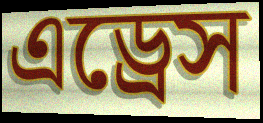
এড্রেস